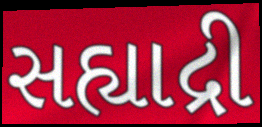
સહ્યાદ્રી